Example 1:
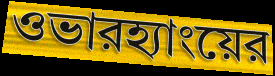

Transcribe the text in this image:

ওভারহ্যাংয়ের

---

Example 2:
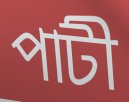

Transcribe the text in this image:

পাটী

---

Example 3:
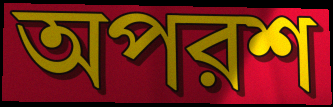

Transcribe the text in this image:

অপরশ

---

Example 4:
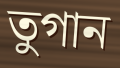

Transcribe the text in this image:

তুগান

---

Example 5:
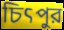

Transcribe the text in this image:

চিৎপুর